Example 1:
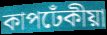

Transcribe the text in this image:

কাপঢেঁকীয়া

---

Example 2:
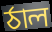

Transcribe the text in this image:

ঠাল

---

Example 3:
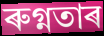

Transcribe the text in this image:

ৰুগ্নতাৰ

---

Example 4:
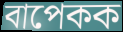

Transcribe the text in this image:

বাপেকক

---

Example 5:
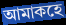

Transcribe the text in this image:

আমাকহে